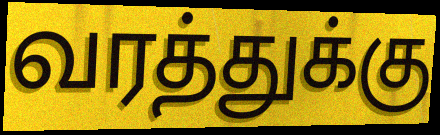
வரத்துக்கு